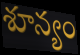
శూన్యం